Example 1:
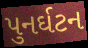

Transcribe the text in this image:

પુનર્ઘટન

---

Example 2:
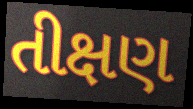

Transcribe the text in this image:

તીક્ષણ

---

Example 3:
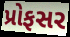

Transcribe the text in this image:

પ્રોફસર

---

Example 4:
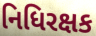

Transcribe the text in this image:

નિધિરક્ષક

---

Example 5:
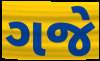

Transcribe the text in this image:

ગજે